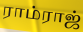
ராம்ராஜ்